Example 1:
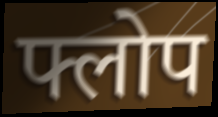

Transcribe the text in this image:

फ्लोप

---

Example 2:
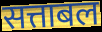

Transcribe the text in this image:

सत्ताबल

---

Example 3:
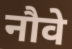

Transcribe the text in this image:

नौवे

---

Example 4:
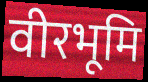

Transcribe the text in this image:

वीरभूमि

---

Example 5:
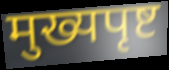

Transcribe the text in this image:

मुख्यपृष्ट